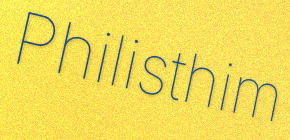
Philisthim